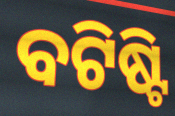
ବଟିଷ୍ଟି